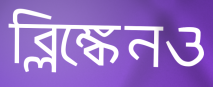
ব্লিঙ্কেনও